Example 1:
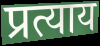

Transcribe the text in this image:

प्रत्याय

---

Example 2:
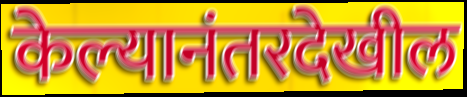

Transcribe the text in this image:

केल्यानंतरदेखील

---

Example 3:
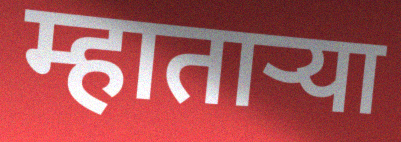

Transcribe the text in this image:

म्हातार्‍या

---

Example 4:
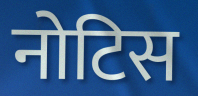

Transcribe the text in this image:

नोटिस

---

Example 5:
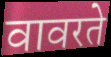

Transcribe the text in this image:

वावरते